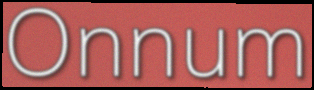
Onnum